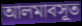
আলমাবসূত